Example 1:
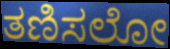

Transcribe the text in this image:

ತಣಿಸಲೋ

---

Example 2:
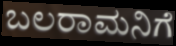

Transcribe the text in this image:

ಬಲರಾಮನಿಗೆ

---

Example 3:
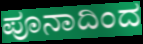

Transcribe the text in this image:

ಪೂನಾದಿಂದ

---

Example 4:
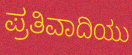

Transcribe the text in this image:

ಪ್ರತಿವಾದಿಯು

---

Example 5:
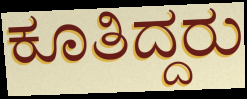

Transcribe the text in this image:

ಕೂತಿದ್ದರು